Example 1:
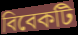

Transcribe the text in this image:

বিবেকটি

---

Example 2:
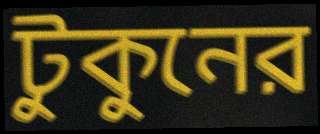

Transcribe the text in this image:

টুকুনের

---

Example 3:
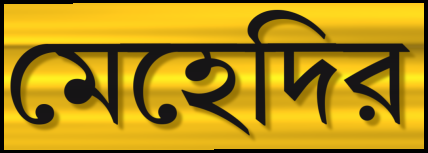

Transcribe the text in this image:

মেহেদির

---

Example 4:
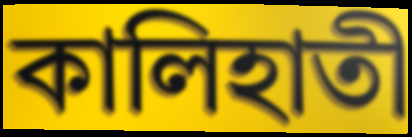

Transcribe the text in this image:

কালিহাতী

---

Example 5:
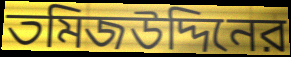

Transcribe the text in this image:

তমিজউদ্দিনের